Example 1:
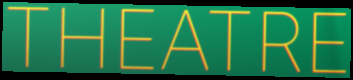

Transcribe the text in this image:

THEATRE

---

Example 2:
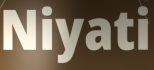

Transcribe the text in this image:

Niyati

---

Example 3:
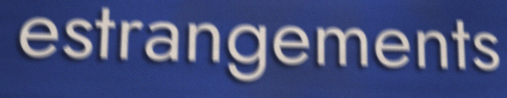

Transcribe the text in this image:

estrangements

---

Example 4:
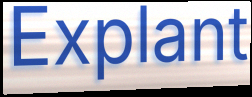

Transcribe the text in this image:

Explant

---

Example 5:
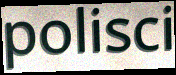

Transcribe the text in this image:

polisci